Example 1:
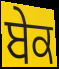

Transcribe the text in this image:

ਬੇਕ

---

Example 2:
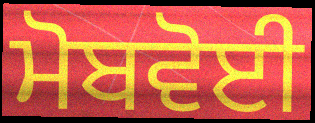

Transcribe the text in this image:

ਮੋਬਵੋਈ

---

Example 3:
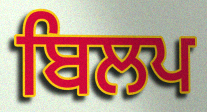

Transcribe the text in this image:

ਬਿਲਪ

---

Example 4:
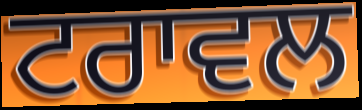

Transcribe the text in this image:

ਟਰਾਵਲ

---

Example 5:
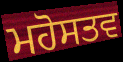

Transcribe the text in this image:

ਮਹੋਸਤਵ